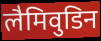
लैमिवुडिन